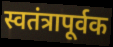
स्वतंत्रापूर्वक